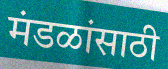
मंडळांसाठी